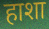
हाशा